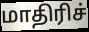
மாதிரிச்